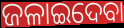
ଜଳାଇଦେବା